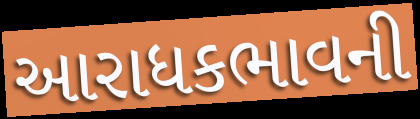
આરાધકભાવની